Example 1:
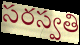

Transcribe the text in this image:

సరస్వతి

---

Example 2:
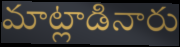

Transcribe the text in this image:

మాట్లాడినారు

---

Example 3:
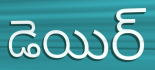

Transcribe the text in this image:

డెయిర్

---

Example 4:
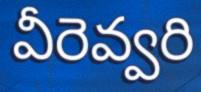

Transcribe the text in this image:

వీరెవ్వరి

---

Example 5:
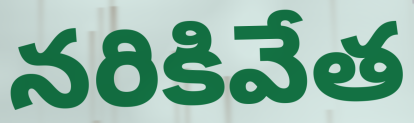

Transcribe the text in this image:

నరికివేత